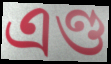
এণ্ড